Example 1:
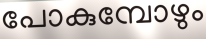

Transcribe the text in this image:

പോകുമ്പോഴും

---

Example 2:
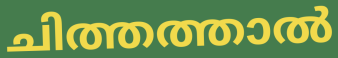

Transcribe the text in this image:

ചിത്തത്താൽ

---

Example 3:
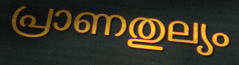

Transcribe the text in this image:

പ്രാണതുല്യം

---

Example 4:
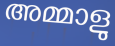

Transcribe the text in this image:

അമ്മാളു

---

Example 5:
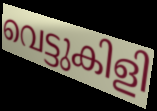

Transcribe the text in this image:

വെട്ടുകിളി